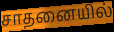
சாதனையில்